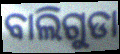
ବାଲିଗୁଡା